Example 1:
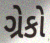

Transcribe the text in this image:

ગ્રેકો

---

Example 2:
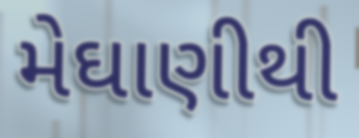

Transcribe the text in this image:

મેઘાણીથી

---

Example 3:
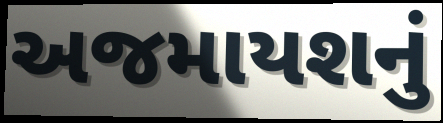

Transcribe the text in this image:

અજમાયશનું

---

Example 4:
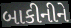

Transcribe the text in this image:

બાકીનીને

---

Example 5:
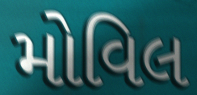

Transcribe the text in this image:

મોવિલ